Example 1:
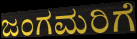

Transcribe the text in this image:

ಜಂಗಮರಿಗೆ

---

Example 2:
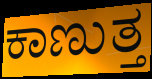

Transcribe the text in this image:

ಕಾಣುತ್ತ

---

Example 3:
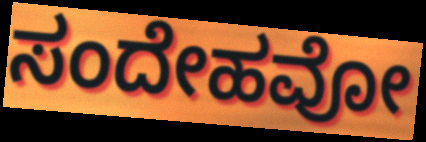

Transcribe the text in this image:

ಸಂದೇಹವೋ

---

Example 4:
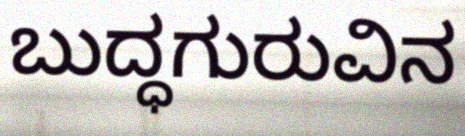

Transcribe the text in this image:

ಬುದ್ಧಗುರುವಿನ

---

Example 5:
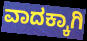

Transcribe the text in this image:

ವಾದಕ್ಕಾಗಿ